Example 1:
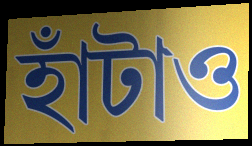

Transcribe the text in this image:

হাঁটাও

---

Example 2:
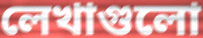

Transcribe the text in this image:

লেখাগুলো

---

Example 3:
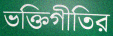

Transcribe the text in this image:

ভক্তিগীতির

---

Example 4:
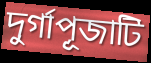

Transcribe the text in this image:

দুর্গাপূজাটি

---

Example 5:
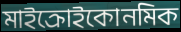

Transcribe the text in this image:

মাইক্রোইকোনমিক